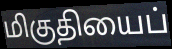
மிகுதியைப்